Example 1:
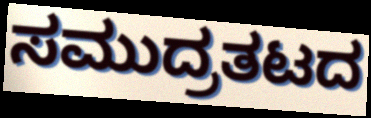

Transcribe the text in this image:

ಸಮುದ್ರತಟದ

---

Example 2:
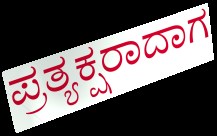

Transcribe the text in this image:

ಪ್ರತ್ಯಕ್ಷರಾದಾಗ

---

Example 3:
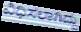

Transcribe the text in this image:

ವಿಧಿಸಲಾಗಿದ್ದು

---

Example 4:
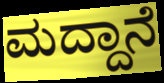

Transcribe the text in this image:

ಮದ್ದಾನೆ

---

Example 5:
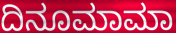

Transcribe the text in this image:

ದಿನೂಮಾಮಾ